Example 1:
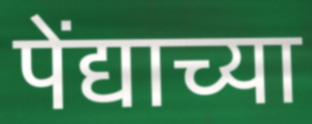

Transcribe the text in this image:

पेंद्याच्या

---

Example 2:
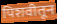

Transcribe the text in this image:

पिशवीतून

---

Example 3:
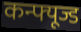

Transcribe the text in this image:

कन्फ्यूज्ड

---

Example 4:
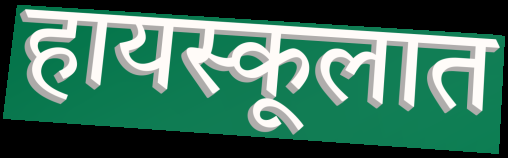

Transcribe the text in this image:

हायस्कूलात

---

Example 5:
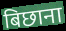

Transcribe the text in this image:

बिछाना